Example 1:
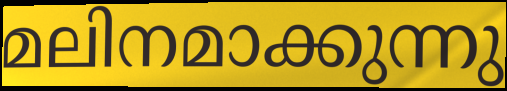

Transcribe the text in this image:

മലിനമാക്കുന്നു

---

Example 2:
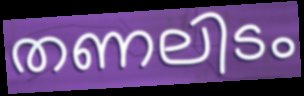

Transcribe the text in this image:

തണലിടം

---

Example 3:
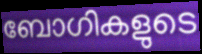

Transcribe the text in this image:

ബോഗികളുടെ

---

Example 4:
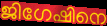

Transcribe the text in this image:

ജിഗേഷിനെ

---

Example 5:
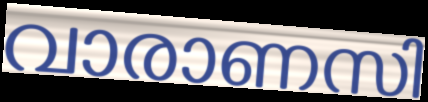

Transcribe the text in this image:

വാരാണസി